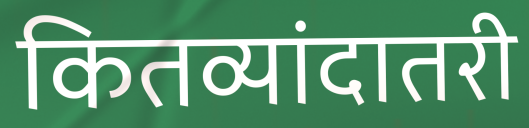
कितव्यांदातरी